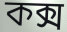
কক্স